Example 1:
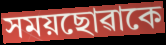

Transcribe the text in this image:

সময়ছোৱাকে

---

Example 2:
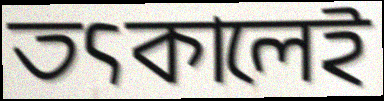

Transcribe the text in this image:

তৎকালেই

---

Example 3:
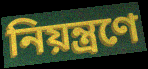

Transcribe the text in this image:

নিয়ন্ত্ৰণে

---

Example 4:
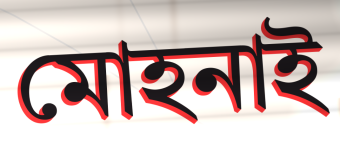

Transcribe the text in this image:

মোহনাই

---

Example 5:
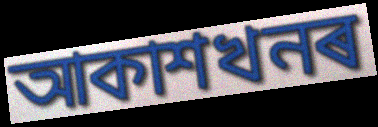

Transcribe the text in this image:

আকাশখনৰ